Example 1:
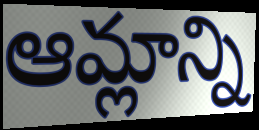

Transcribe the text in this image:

ఆమ్లాన్ని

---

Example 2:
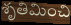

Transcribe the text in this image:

శృతిమించి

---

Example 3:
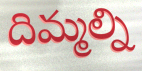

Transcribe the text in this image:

దిమ్మల్ని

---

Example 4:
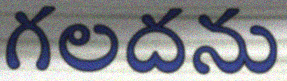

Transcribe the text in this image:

గలదను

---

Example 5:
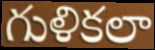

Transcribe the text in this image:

గుళికలా